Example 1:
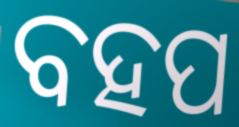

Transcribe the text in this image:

ବହପ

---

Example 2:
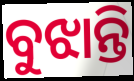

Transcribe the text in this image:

ବୁଝାନ୍ତି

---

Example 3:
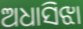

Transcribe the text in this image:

ଅଧାସିଝା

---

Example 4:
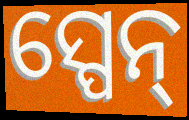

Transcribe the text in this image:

ସ୍ପେନ୍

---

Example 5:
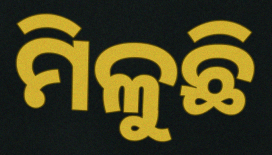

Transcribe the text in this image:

ମିଳୁଛି